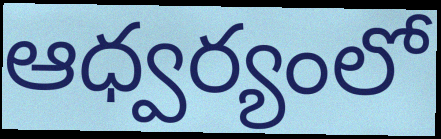
ఆధ్వర్యంలో